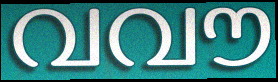
വവൗ